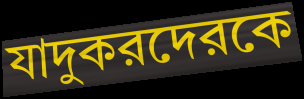
যাদুকরদেরকে